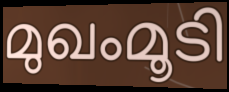
മുഖംമൂടി